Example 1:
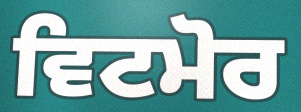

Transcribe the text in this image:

ਵਿਟਮੋਰ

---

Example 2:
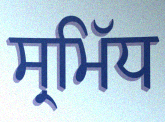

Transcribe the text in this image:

ਸ੍ਰਮਿੱਧ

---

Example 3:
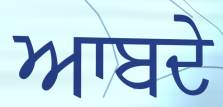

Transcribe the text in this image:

ਆਬਦੇ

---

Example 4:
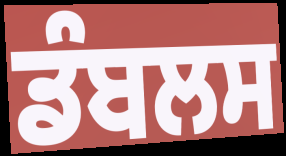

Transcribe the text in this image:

ਡੰਬਲਸ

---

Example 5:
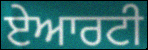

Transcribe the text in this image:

ਏਆਰਟੀ